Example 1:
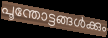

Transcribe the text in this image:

പൂന്തോട്ടങ്ങൾക്കും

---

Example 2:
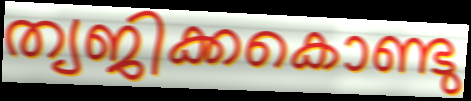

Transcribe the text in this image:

ത്യജിക്കകൊണ്ടു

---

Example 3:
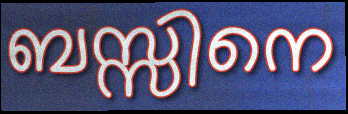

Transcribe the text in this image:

ബസ്സിനെ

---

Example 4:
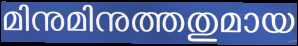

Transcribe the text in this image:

മിനുമിനുത്തതുമായ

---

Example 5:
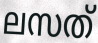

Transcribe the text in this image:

ലസത്